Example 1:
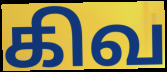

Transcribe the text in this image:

கிவ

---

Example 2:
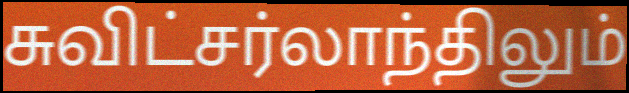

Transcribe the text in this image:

சுவிட்சர்லாந்திலும்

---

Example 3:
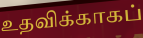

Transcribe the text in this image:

உதவிக்காகப்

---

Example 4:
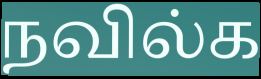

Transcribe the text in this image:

நவில்க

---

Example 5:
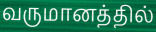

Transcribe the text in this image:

வருமானத்தில்